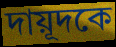
দায়ূদকে